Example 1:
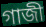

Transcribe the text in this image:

গাজী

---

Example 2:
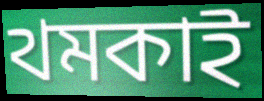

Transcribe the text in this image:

থমকাই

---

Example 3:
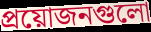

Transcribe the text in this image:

প্রয়োজনগুলো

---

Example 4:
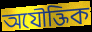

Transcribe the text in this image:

অযৌক্তিক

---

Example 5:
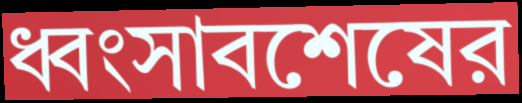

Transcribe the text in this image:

ধ্বংসাবশেষের